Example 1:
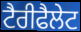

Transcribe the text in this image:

ਟੈਰੀਫੈਲੇਟ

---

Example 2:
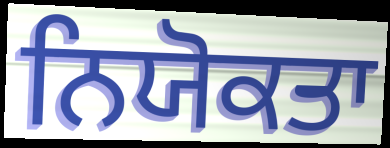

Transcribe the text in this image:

ਨਿਯੋਕਤਾ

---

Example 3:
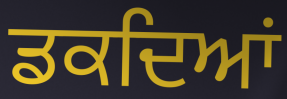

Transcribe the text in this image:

ਡਕਦਿਆਂ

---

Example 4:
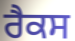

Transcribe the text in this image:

ਰੈਕਸ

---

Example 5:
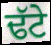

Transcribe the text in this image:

ਢੱਟੇ